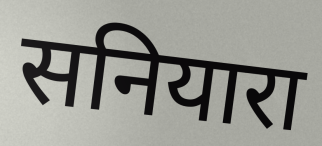
सनियारा